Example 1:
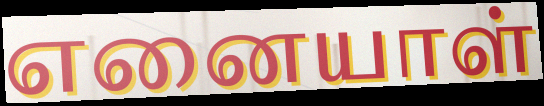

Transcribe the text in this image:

எனையாள்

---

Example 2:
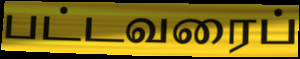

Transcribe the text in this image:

பட்டவரைப்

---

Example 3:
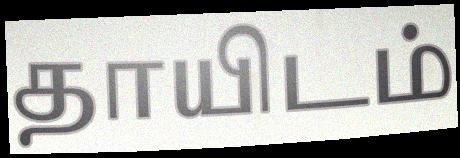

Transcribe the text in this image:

தாயிடம்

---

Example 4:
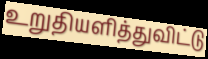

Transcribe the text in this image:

உறுதியளித்துவிட்டு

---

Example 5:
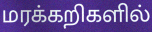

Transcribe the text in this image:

மரக்கறிகளில்